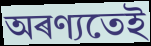
অৰণ্যতেই